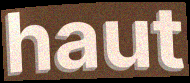
haut